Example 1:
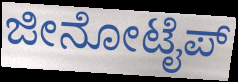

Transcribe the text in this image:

ಜೀನೋಟೈಪ್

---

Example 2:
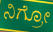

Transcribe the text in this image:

ನಿಗ್ರೋ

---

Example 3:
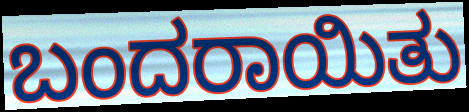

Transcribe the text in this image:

ಬಂದರಾಯಿತು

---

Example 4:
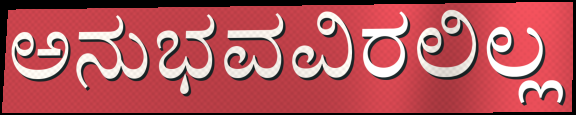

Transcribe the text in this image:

ಅನುಭವವಿರಲಿಲ್ಲ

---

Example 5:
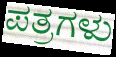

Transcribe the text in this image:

ಪತ್ರಗಳು